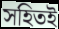
সহিতই